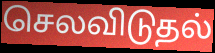
செலவிடுதல்